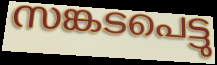
സങ്കടപെട്ടു